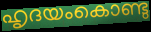
ഹൃദയംകൊണ്ടു